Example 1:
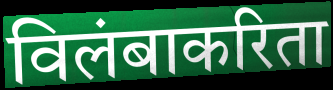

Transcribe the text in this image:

विलंबाकरिता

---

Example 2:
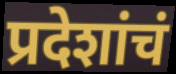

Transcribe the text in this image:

प्रदेशांचं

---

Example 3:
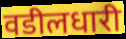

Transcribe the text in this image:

वडीलधारी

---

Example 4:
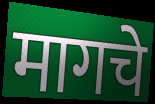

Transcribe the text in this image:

मागचे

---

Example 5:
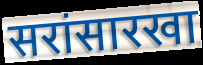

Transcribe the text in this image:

सरांसारखा